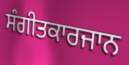
ਸੰਗੀਤਕਾਰਜਾਨ